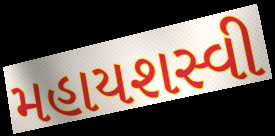
મહાયશસ્વી